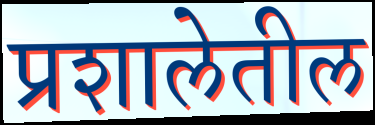
प्रशालेतील